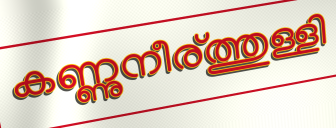
കണ്ണുനീര്ത്തുള്ളി